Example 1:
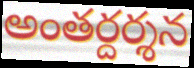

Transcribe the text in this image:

అంతర్దర్శన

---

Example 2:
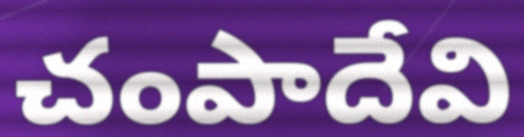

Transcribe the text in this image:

చంపాదేవి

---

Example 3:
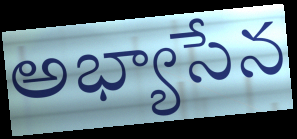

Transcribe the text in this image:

అభ్యాసేన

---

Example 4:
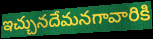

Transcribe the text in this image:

ఇచ్చునదేమనగావారికి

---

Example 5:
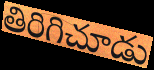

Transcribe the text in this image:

తిరిగిచూడు